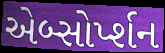
એબ્સોર્પ્શન